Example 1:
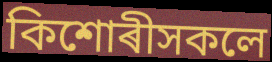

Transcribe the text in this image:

কিশোৰীসকলে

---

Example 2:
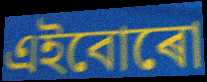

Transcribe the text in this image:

এইবোৰো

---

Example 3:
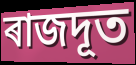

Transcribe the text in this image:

ৰাজদূত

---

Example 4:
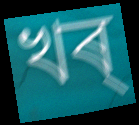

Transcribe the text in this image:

খৰ্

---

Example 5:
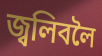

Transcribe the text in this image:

জ্বলিবলৈ